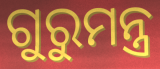
ଗୁରୁମନ୍ତ୍ର